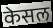
केसल